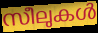
സീലുകൾ